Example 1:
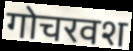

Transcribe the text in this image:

गोचरवश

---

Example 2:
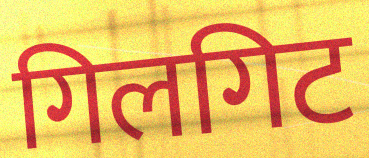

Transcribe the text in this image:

गिलगिट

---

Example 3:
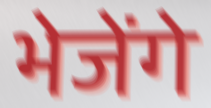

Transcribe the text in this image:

भेजेंगे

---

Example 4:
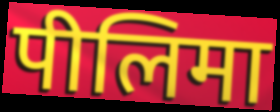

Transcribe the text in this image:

पीलिमा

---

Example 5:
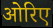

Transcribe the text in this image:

ओरिए